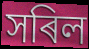
সৰিল